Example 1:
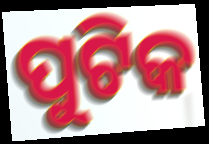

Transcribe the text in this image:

ପୁଟିକ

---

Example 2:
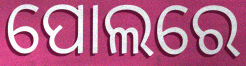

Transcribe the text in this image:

ପୋଲରେ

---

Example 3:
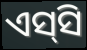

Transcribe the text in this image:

ଏସ୍‌ସି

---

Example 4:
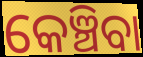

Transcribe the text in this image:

କେଞ୍ଚିବା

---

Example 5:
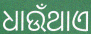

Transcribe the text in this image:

ଧାଉଁଥାଏ